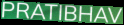
PRATIBHAV